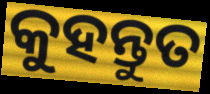
କୁହନ୍ତୁତ